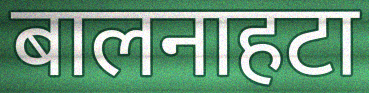
बालनाहटा